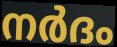
നർദം